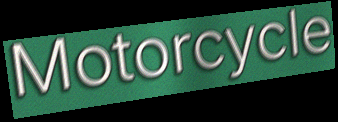
Motorcycle